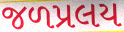
જળપ્રલય